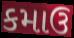
કમાઉ